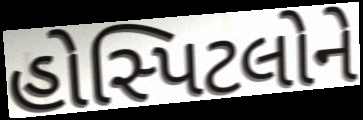
હોસ્પિટલોને